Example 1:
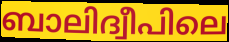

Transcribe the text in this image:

ബാലിദ്വീപിലെ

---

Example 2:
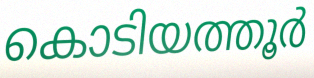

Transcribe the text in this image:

കൊടിയത്തൂർ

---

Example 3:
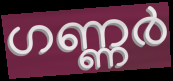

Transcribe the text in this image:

ഗണ്ണർ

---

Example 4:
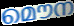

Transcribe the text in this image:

മൌന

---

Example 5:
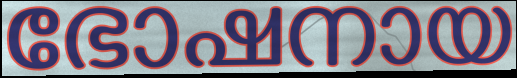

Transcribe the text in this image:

ഭോഷനായ